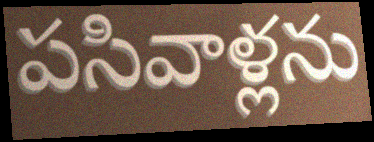
పసివాళ్లను